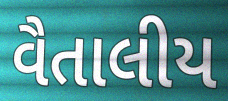
વૈતાલીય